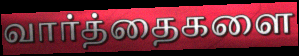
வார்த்தைகளை